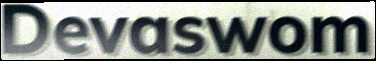
Devaswom